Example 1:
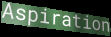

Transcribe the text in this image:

Aspiration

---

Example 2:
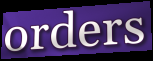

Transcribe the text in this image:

orders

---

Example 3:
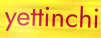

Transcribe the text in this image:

yettinchi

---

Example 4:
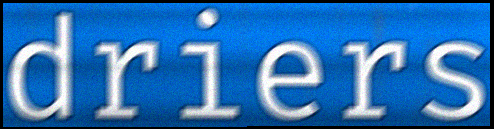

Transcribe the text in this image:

driers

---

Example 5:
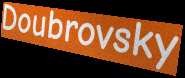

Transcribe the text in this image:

Doubrovsky